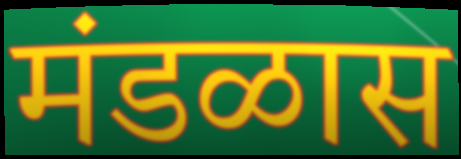
मंडळास